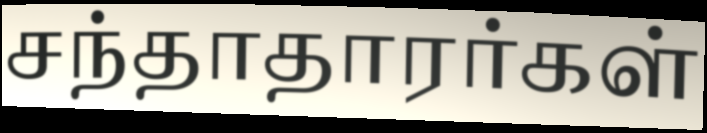
சந்தாதாரர்கள்